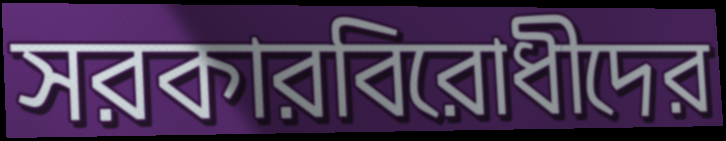
সরকারবিরোধীদের